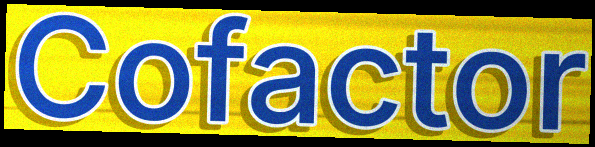
Cofactor